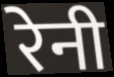
रेनी